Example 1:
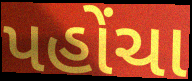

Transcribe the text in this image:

પહોંચા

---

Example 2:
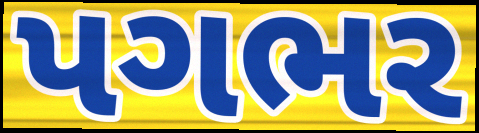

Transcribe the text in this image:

પગભર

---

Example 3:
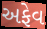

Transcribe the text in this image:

અફેવ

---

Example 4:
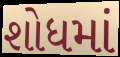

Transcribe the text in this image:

શોધમાં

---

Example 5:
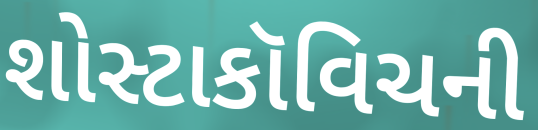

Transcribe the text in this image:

શોસ્ટાકૉવિચની